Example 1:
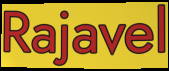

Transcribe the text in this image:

Rajavel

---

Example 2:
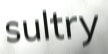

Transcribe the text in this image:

sultry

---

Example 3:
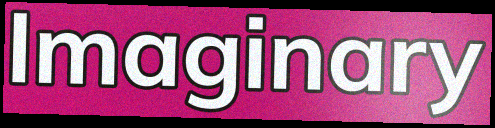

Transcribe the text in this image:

Imaginary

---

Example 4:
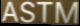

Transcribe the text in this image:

ASTM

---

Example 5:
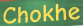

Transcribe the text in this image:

Chokhe